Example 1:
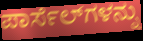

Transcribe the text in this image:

ಪಾರ್ಸೆಲ್‌ಗಳನ್ನು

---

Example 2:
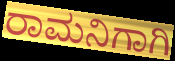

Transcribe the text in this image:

ರಾಮನಿಗಾಗಿ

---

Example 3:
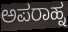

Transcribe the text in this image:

ಅಪರಾಹ್ನ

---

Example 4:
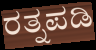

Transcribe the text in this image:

ರತ್ನಪಡಿ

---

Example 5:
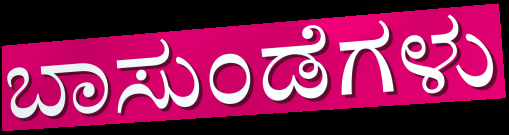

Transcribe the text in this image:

ಬಾಸುಂಡೆಗಳು